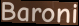
Baroni